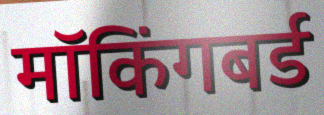
मॉकिंगबर्ड